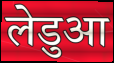
लेडुआ